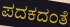
ಪದಕದಂತೆ